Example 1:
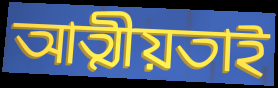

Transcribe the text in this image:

আত্মীয়তাই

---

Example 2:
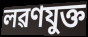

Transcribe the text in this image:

লৱণযুক্ত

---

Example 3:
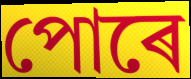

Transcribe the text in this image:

পোৰে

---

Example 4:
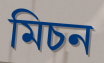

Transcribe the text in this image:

মিচন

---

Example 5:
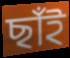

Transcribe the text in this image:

ছাঁই